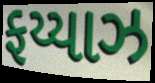
ફય્યાઝ